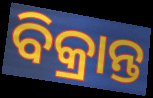
ବିକ୍ରାନ୍ତ